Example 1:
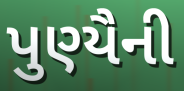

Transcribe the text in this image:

પુણ્યૈની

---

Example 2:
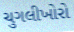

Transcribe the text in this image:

ચુગલીખોરો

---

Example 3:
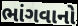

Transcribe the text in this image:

ભાંગવાનો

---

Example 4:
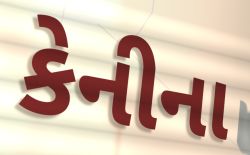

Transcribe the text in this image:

કેનીના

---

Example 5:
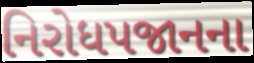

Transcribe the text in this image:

નિરોધપજાનના